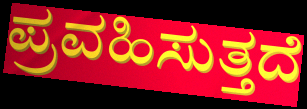
ಪ್ರವಹಿಸುತ್ತದೆ